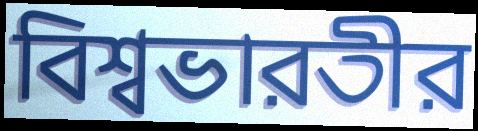
বিশ্বভারতীর